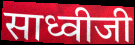
साध्वीजी